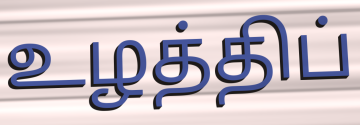
உழத்திப்